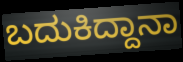
ಬದುಕಿದ್ದಾನಾ